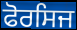
ਫੋਰਸਿਜ